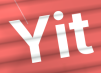
Yit